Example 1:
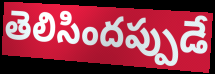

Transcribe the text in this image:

తెలిసిందప్పుడే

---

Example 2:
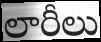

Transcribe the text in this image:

లారీలు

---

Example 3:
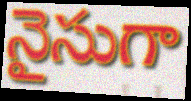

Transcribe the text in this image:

నైసుగా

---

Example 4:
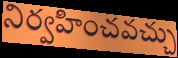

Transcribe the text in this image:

నిర్వహించవచ్చు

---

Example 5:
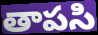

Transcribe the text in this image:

తాపసి